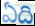
ఏది